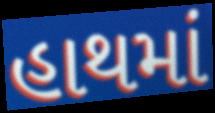
હાથમાં